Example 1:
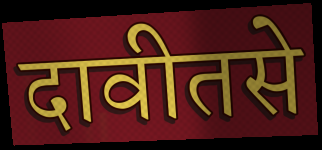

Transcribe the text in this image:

दावीतसे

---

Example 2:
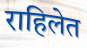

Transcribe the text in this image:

राहिलेत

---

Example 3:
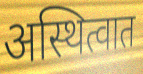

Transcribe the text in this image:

अस्थित्वात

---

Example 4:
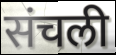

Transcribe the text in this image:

संचली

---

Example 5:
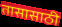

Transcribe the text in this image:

तासासाठी